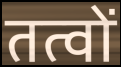
तत्वों